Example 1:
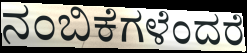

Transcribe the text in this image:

ನಂಬಿಕೆಗಳೆಂದರೆ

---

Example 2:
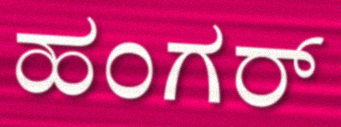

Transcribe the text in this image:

ಹಂಗರ್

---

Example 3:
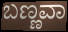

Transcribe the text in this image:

ಬಣ್ಣವಾ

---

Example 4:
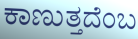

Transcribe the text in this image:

ಕಾಣುತ್ತದೆಂಬ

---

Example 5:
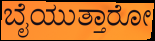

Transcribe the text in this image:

ಬೈಯುತ್ತಾರೋ